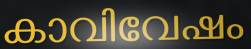
കാവിവേഷം